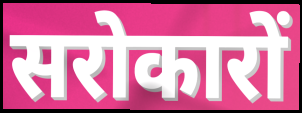
सरोकारों